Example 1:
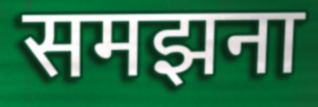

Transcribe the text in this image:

समझना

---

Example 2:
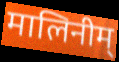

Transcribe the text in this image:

मालिनीम्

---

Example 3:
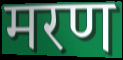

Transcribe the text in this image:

मरण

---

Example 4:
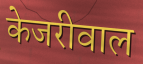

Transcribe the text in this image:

केजरीवाल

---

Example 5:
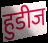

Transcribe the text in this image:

हुडीज